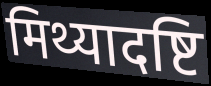
मिथ्यादष्टि